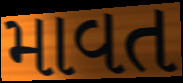
માવત